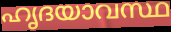
ഹൃദയാവസ്ഥ